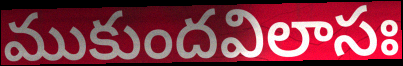
ముకుందవిలాసః